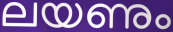
ലയണും